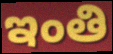
ఇంతి